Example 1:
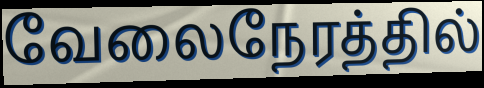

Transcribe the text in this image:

வேலைநேரத்தில்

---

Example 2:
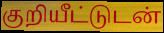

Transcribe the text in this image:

குறியீட்டுடன்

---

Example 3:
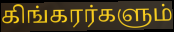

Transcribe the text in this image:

கிங்கரர்களும்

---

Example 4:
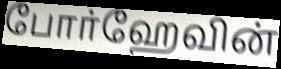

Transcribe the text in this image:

போர்ஹேவின்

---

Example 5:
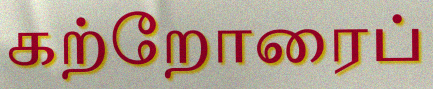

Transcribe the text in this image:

கற்றோரைப்